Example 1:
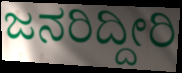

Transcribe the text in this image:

ಜನರಿದ್ದೀರಿ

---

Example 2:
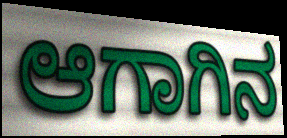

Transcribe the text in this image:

ಆಗಾಗಿನ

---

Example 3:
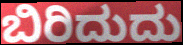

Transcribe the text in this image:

ಬಿರಿದುದು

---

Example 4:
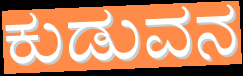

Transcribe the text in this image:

ಕುಡುವನ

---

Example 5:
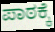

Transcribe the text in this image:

ಪಾಠಕ್ಕೆ